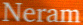
Neram